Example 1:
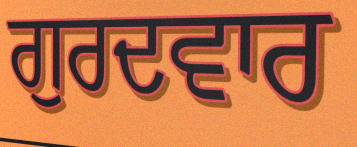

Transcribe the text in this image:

ਗੁਰਦਵਾਰ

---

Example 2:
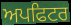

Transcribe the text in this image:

ਅਪਫਿਟਰ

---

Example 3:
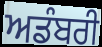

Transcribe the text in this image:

ਅਡੰਬਰੀ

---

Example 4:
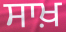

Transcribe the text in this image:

ਸਾਖ਼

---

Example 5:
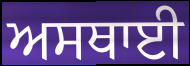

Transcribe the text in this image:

ਅਸਥਾਈ